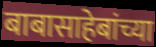
बाबासाहेबांच्‍या